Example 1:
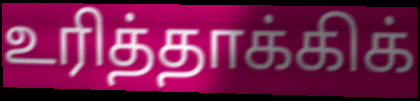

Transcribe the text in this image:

உரித்தாக்கிக்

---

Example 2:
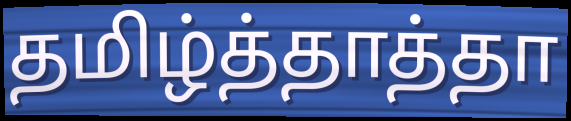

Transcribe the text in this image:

தமிழ்த்தாத்தா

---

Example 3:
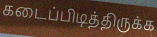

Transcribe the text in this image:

கடைப்பிடித்திருக்க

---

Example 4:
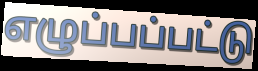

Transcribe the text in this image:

எழுப்பப்பட்டு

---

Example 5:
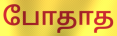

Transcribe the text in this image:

போதாத